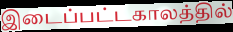
இடைப்பட்டகாலத்தில்